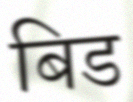
बिड